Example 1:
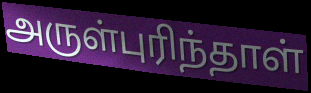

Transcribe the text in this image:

அருள்புரிந்தாள்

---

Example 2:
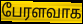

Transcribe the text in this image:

பேரளவாக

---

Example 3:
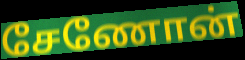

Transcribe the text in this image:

சேணோன்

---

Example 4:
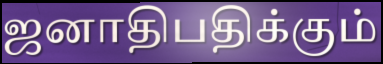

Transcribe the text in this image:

ஜனாதிபதிக்கும்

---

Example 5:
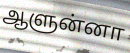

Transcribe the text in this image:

ஆளுன்னா